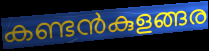
കണ്ടൻകുളങ്ങര